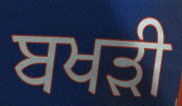
ਬਖੜੀ